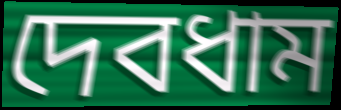
দেবধাম